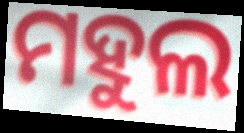
ମହୁଲ